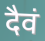
दैवं